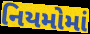
નિયમોમાં